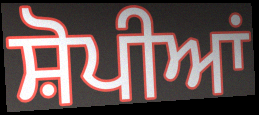
ਸ਼ੋਪੀਆਂ